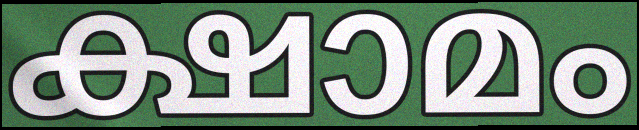
ക്ഷാമം